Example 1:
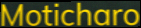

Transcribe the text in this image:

Moticharo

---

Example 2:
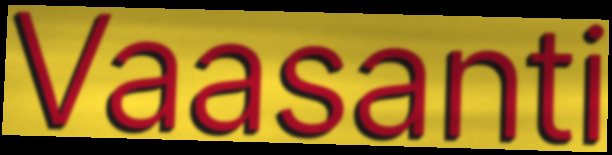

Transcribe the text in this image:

Vaasanti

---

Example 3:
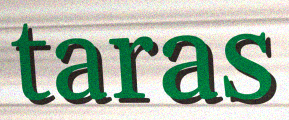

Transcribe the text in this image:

taras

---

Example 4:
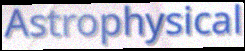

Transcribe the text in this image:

Astrophysical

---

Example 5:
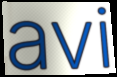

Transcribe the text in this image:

avi